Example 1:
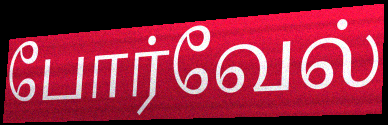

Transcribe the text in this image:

போர்வேல்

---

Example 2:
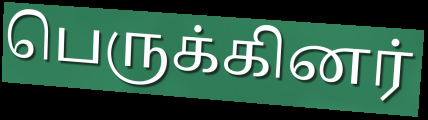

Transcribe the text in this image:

பெருக்கினர்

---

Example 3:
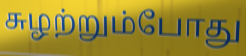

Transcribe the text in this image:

சுழற்றும்போது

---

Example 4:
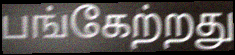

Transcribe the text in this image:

பங்கேற்றது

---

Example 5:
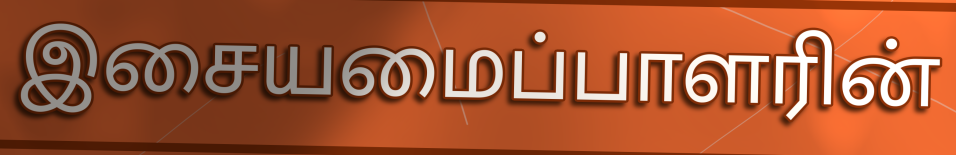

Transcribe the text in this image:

இசையமைப்பாளரின்